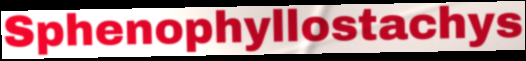
Sphenophyllostachys